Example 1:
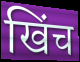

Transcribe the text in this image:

खिंच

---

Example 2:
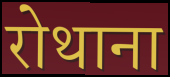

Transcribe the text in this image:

रोथाना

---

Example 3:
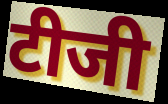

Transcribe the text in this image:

टीजी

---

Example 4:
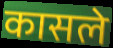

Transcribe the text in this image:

कासले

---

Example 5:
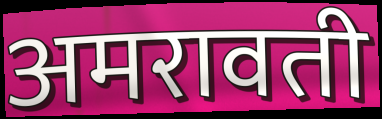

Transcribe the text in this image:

अमरावती